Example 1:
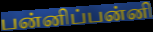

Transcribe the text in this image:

பன்னிப்பன்னி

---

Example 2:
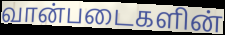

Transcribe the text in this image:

வான்படைகளின்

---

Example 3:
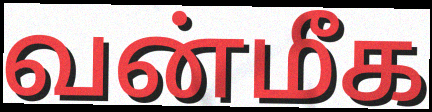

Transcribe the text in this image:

வன்மீக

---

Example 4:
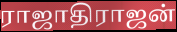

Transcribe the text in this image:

ராஜாதிராஜன்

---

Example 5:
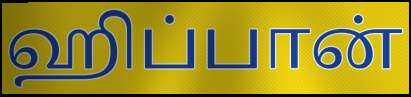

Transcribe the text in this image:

ஹிப்பான்